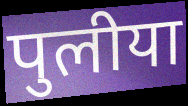
पुलीया